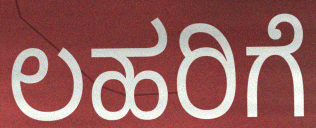
ಲಹರಿಗೆ